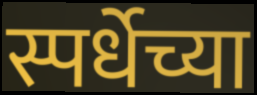
स्पर्धेच्या